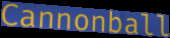
Cannonball